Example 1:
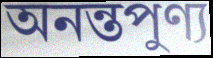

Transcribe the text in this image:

অনন্তপুণ্য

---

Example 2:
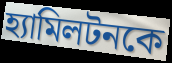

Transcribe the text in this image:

হ্যামিলটনকে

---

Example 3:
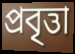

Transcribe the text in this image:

প্রবৃত্তা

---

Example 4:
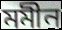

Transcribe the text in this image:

মমীন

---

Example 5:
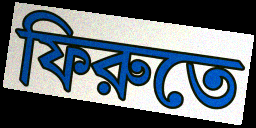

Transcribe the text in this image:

ফিরুতে